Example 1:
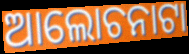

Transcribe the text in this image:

ଆଲୋଚନାଟା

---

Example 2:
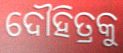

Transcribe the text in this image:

ଦୌହିତ୍ରକୁ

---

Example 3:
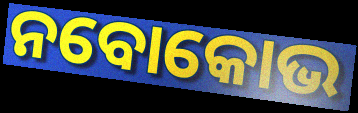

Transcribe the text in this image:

ନବୋକୋଭ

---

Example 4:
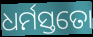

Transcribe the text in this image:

ଧର୍ମସ୍ତତୋ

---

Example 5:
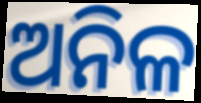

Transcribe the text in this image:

ଅନିଳ